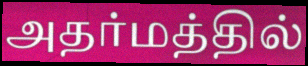
அதர்மத்தில்